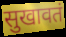
सुखावतं